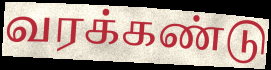
வரக்கண்டு